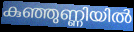
കുഞ്ഞുണ്ണിയിൽ